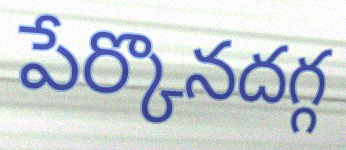
పేర్కొనదగ్గ